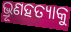
ଭ୍ରୂଣହତ୍ୟାକୁ